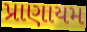
પ્રાણાયમ